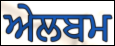
ਅੇਲਬਮ